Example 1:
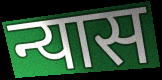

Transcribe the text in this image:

न्‍यास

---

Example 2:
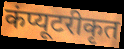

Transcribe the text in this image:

कंप्यूटरीकृत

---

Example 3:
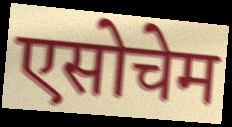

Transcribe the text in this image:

एसोचेम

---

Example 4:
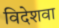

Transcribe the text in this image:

विदेशवा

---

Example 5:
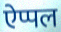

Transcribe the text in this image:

ऐप्पल